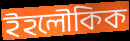
ইহলৌকিক